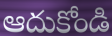
ఆదుకోండి